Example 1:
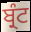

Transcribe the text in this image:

ਬ੍ਰੰਟ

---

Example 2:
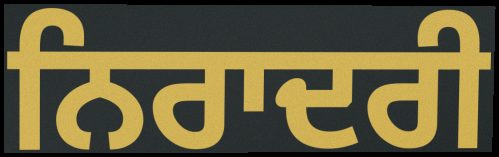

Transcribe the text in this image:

ਨਿਰਾਦਰੀ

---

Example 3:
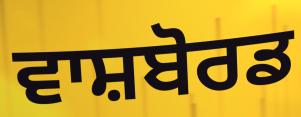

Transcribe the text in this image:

ਵਾਸ਼ਬੋਰਡ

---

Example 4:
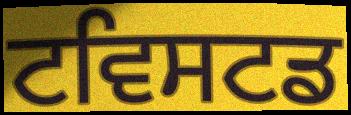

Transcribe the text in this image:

ਟਵਿਸਟਡ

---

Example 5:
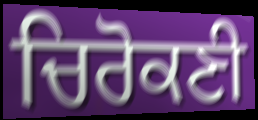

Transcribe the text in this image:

ਚਿਰੋਕਣੀ